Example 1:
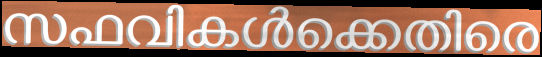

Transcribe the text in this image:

സഫവികൾക്കെതിരെ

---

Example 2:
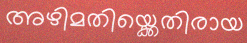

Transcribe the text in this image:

അഴിമതിയ്ക്കെതിരായ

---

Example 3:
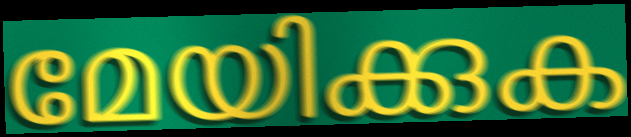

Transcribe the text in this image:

മേയിക്കുക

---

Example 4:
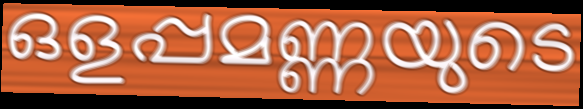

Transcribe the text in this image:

ഒളപ്പമണ്ണയുടെ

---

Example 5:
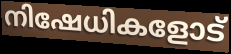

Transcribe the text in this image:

നിഷേധികളോട്